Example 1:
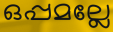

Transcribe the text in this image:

ഒപ്പമല്ലേ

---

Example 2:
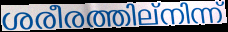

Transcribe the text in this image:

ശരീരത്തില്നിന്ന്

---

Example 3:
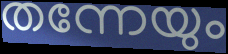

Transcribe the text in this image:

തന്നേയും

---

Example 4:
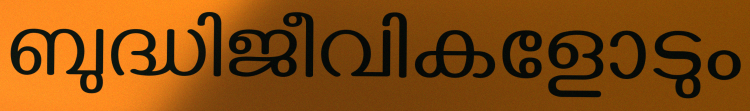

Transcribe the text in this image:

ബുദ്ധിജീവികളോടും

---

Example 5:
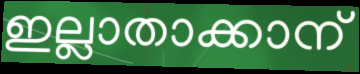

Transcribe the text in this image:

ഇല്ലാതാക്കാന്